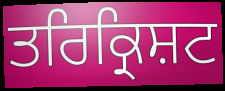
ਤਰਿਕ੍ਰਿਸ਼ਟ